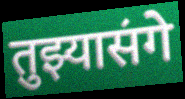
तुझ्यासंगे